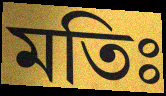
মতিঃ